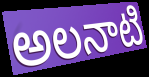
అలనాటి